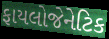
ફાયલોજેનેટિક